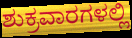
ಶುಕ್ರವಾರಗಳಲ್ಲಿ